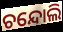
ଚନ୍ଦୋଲି